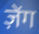
ज़ेंग